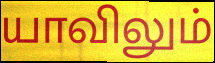
யாவிலும்